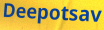
Deepotsav